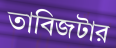
তাবিজটার